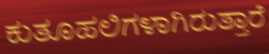
ಕುತೂಹಲಿಗಳಾಗಿರುತ್ತಾರೆ